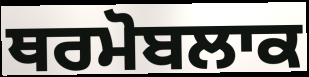
ਥਰਮੋਬਲਾਕ